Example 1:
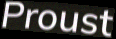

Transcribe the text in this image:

Proust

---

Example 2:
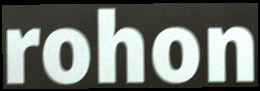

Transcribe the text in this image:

rohon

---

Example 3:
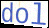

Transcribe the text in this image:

dol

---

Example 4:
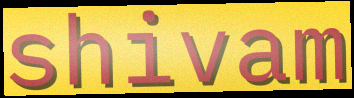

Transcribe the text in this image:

shivam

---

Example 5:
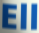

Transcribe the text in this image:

Ell